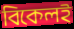
বিকেলই